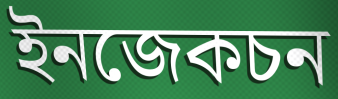
ইনজেকচন